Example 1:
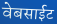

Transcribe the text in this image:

वेबसाईट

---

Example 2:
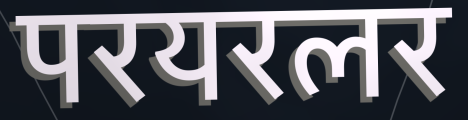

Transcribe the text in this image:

परयरलर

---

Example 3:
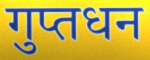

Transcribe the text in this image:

गुप्तधन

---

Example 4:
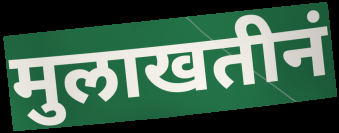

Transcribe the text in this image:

मुलाखतीनं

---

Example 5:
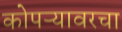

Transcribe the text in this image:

कोपऱ्यावरचा